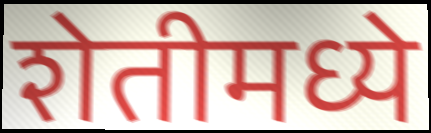
शेतीमध्ये